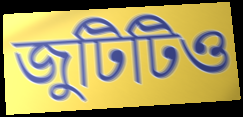
জুটিটিও